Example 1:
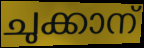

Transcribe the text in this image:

ചുക്കാന്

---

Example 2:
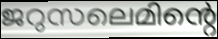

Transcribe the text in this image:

ജറുസലെമിന്റെ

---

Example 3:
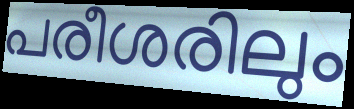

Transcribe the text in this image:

പരീശരിലും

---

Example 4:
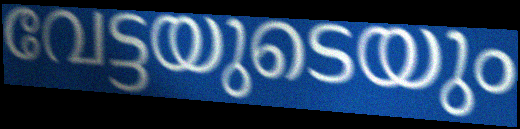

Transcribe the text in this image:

വേട്ടയുടെയും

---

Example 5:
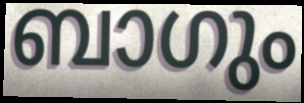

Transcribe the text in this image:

ബാഗും